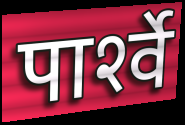
पार्श्वे